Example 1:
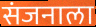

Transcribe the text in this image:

संजनाला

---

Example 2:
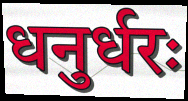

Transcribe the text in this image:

धनुर्धरः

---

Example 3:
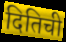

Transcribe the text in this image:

दितिची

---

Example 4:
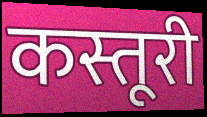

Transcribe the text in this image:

कस्तूरी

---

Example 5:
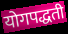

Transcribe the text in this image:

योगपद्धती